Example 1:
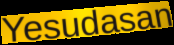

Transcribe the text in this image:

Yesudasan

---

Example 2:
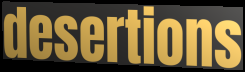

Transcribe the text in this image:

desertions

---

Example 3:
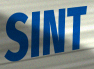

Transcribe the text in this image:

SINT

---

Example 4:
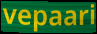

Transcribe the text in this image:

vepaari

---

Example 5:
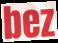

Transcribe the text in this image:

bez